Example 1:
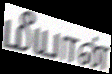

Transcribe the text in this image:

மீயான்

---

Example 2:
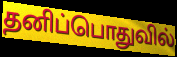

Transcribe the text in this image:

தனிப்பொதுவில்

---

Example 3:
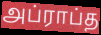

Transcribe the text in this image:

அப்ராப்த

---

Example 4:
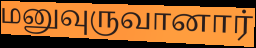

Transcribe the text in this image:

மனுவுருவானார்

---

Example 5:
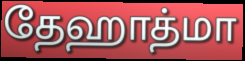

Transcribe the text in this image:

தேஹாத்மா